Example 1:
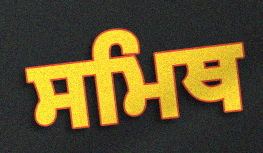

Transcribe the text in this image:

ਸਮਿਥ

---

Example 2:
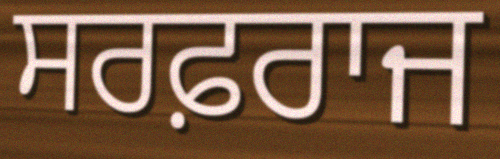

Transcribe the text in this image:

ਸਰਫ਼ਰਾਜ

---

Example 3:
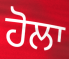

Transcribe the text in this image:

ਹੋਲਾ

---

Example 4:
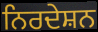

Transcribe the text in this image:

ਨਿਰਦੇਸ਼ਨ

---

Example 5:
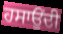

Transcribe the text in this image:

ਹਸਾਉਂਦੀ